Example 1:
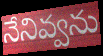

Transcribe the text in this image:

నేనివ్వను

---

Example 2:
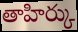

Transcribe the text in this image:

తాహిర్కు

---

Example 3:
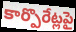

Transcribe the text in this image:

కార్పొరేట్లపై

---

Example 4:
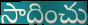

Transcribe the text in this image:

సాదించు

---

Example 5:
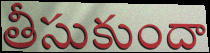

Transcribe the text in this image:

తీసుకుందా